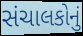
સંચાલકોનું